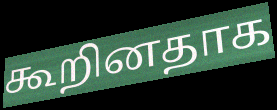
கூறினதாக